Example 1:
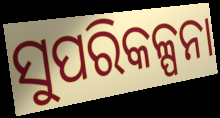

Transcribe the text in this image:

ସୁପରିକଳ୍ପନା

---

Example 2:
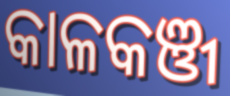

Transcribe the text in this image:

କାଳକଞ୍ଜ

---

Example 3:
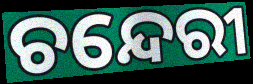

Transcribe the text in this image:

ଚନ୍ଦେରୀ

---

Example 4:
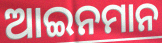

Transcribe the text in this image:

ଆଇନମାନ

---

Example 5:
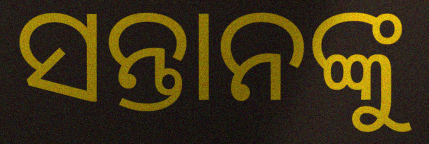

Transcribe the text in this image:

ସନ୍ତାନଙ୍କୁ